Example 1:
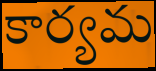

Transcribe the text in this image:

కార్యమ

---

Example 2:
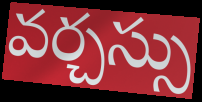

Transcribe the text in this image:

వర్చస్సు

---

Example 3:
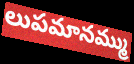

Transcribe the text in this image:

లుపమానమ్ము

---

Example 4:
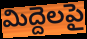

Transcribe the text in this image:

మిద్దెలపై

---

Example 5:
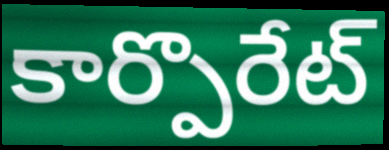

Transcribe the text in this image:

కార్పొరేట్